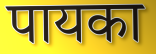
पायका